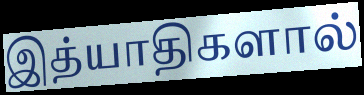
இத்யாதிகளால்